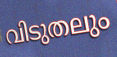
വിടുതലും